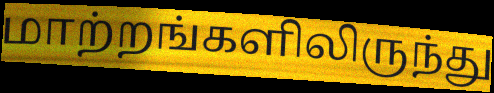
மாற்றங்களிலிருந்து